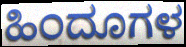
ಹಿಂದೂಗಳ